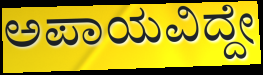
ಅಪಾಯವಿದ್ದೇ